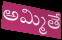
అమ్మితే